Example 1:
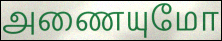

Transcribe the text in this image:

அணையுமோ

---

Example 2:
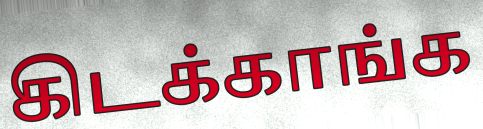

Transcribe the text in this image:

கிடக்காங்க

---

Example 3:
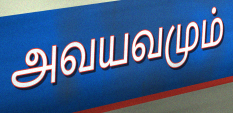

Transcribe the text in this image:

அவயவமும்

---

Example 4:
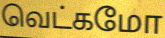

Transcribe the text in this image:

வெட்கமோ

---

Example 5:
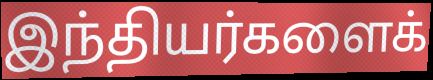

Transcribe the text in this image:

இந்தியர்களைக்